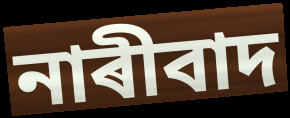
নাৰীবাদ